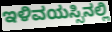
ಇಳಿವಯಸ್ಸಿನಲ್ಲಿ